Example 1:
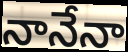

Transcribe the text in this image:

నానేనా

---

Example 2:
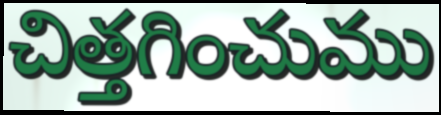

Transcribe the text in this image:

చిత్తగించుము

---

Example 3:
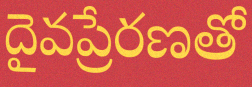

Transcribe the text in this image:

దైవప్రేరణతో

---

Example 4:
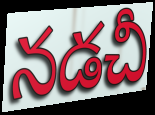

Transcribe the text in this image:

నడచీ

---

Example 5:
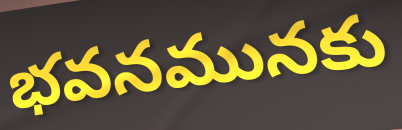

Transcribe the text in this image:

భవనమునకు